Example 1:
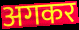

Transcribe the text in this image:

अगकर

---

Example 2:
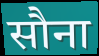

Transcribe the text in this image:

सौना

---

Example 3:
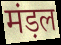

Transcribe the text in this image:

मंड़ल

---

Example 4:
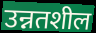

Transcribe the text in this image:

उन्नतशील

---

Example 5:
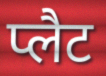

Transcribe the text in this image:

प्लैट